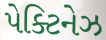
પેક્ટિનેઝ